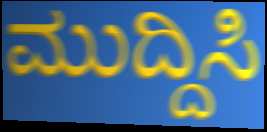
ಮುದ್ದಿಸಿ